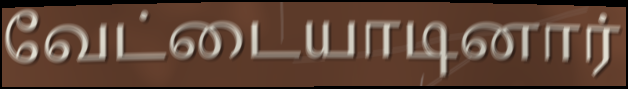
வேட்டையாடினார்